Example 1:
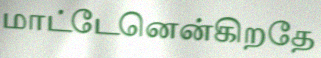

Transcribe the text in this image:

மாட்டேனென்கிறதே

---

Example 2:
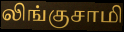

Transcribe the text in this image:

லிங்குசாமி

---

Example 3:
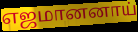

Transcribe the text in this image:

எஜமானனாய்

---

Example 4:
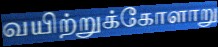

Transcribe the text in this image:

வயிற்றுக்கோளாறு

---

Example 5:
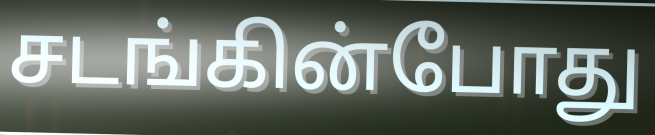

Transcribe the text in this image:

சடங்கின்போது